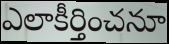
ఎలాకీర్తించనూ